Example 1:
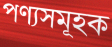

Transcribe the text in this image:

পণ্যসমূহক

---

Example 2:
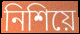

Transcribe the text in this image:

নিশিয়ে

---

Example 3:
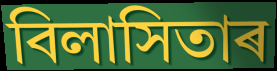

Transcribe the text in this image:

বিলাসিতাৰ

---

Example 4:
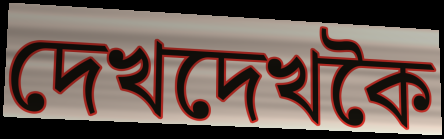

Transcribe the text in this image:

দেখদেখকৈ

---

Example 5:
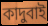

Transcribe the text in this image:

কাদুবাই